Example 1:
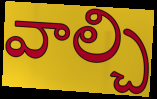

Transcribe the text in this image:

వాల్చి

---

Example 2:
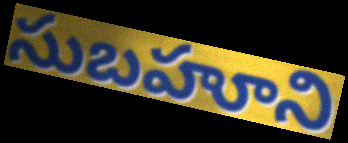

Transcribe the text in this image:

సుబహూని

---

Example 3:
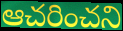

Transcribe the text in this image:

ఆచరించని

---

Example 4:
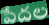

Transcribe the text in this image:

పేదల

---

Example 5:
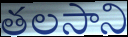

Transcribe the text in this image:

తలసాని